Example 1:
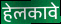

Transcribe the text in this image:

हेलकावे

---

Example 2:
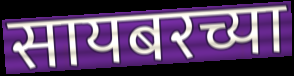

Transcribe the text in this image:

सायबरच्या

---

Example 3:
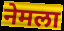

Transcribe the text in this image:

नेमला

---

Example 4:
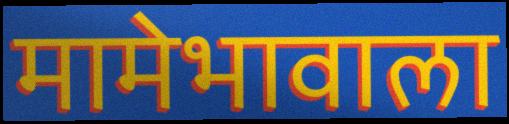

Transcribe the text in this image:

मामेभावाला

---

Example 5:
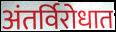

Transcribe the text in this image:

अंतर्विरोधात